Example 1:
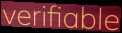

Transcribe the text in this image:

verifiable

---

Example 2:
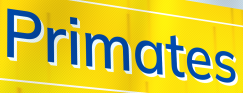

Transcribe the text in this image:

Primates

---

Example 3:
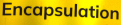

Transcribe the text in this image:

Encapsulation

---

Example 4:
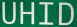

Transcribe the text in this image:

UHID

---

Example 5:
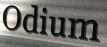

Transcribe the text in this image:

Odium